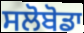
ਸਲੋਬੋਡਾ